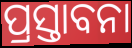
ପ୍ରସ୍ତାବନା